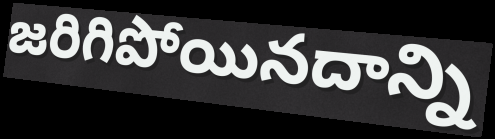
జరిగిపోయినదాన్ని